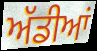
ਅੱਡੀਆਂ